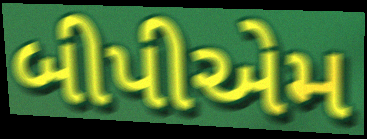
બીપીએમ